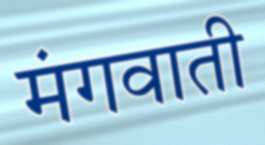
मंगवाती